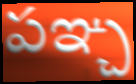
పఞ్చ